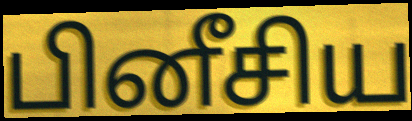
பினீசிய